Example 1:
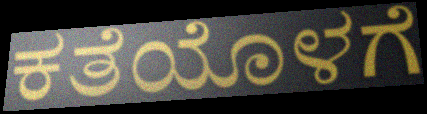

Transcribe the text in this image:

ಕತೆಯೊಳಗೆ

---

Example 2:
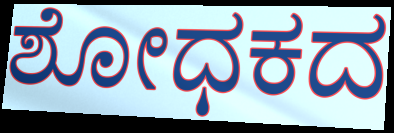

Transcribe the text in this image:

ಶೋಧಕದ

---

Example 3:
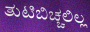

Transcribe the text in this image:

ತುಟಿಬಿಚ್ಚಲಿಲ್ಲ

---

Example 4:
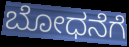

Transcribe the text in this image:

ಬೋಧನೆಗೆ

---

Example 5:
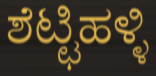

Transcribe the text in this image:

ಶೆಟ್ಟಿಹಳ್ಳಿ